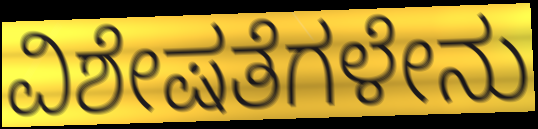
ವಿಶೇಷತೆಗಳೇನು